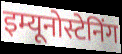
इम्यूनोस्टेनिंग